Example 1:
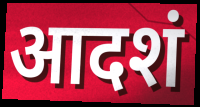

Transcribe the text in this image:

आदशं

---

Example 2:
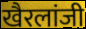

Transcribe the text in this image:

खैरलांजी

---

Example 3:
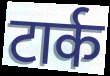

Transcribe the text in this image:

टार्क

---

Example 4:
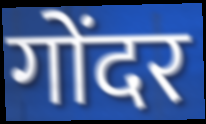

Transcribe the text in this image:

गोंदर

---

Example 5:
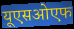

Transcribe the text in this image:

यूएसओएफ